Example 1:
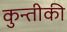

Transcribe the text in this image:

कुन्तीकी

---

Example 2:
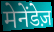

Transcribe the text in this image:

मेनेंडेज़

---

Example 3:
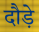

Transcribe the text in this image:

दौड़े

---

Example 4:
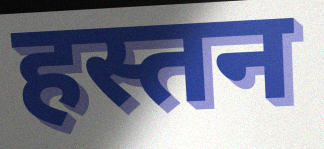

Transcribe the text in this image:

हस्तन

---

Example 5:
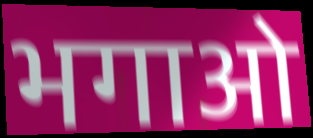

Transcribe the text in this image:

भगाओ